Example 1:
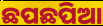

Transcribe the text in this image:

ଛପଛପିଆ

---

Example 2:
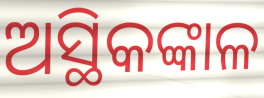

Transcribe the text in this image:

ଅସ୍ଥିକଙ୍କାଳ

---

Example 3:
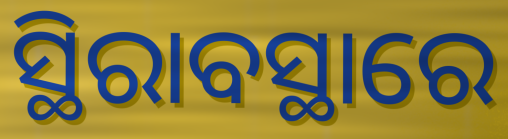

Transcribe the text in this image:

ସ୍ଥିରାବସ୍ଥାରେ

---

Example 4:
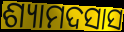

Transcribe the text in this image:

ଶ୍ୟାମଦସାସ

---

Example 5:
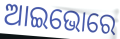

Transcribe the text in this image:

ଆଇଭୋରେ